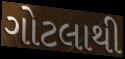
ગોટલાથી